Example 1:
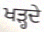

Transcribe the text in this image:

ਖੜ੍ਹਦੇ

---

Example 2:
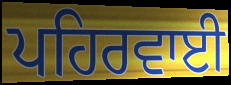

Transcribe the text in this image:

ਪਹਿਰਵਾਈ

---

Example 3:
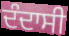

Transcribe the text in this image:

ਦੰਦਾਸੀ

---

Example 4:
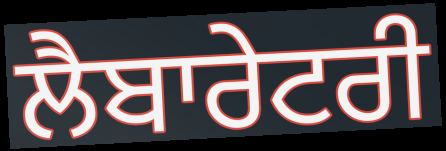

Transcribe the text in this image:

ਲੈਬਾਰੇਟਰੀ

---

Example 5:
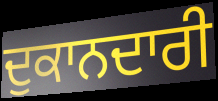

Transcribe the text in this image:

ਦੁਕਾਨਦਾਰੀ